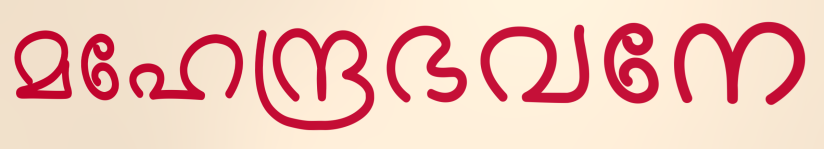
മഹേന്ദ്രഭവനേ